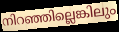
നിറഞ്ഞില്ലെങ്കിലും